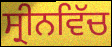
ਸ੍ਰੀਨਵਿੱਚ